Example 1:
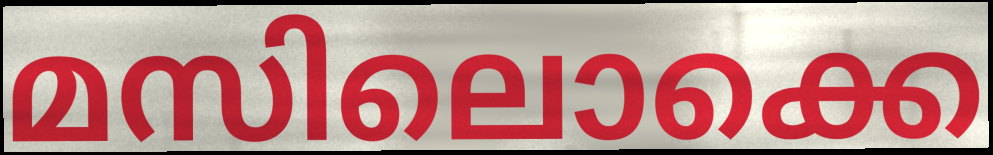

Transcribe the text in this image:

മസിലൊക്കെ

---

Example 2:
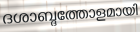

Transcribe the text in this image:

ദശാബ്ദത്തോളമായി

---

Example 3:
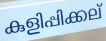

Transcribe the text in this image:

കുളിപ്പിക്കല്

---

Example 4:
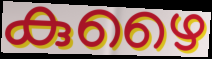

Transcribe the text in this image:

കുഴൈ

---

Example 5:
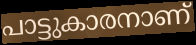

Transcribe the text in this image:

പാട്ടുകാരനാണ്